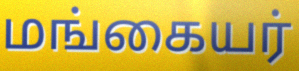
மங்கையர்